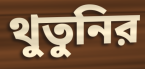
থুতুনির